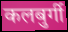
कलबुर्गी